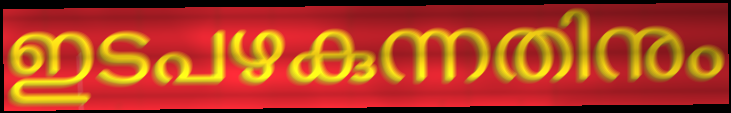
ഇടപഴകുന്നതിനും